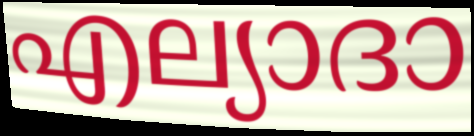
എല്യാദാ